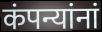
कंपन्यांनां